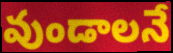
వుండాలనే